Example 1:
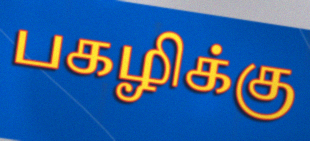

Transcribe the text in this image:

பகழிக்கு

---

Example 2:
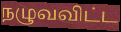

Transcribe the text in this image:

நழுவவிட்ட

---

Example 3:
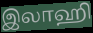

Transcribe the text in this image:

இலாஹி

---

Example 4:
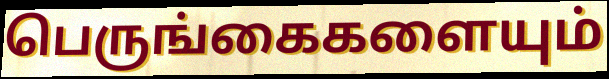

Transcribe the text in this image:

பெருங்கைகளையும்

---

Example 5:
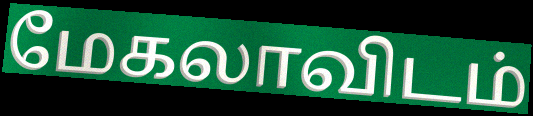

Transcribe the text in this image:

மேகலாவிடம்